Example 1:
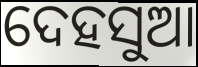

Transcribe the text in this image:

ଦେହସୁଆ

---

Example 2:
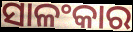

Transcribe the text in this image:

ସାଳଂକାର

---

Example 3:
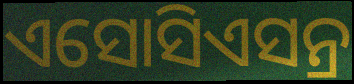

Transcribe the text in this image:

ଏସୋସିଏସନ୍ର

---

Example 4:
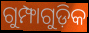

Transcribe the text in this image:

ଗୁମ୍ଫାଗୁଡ଼ିକ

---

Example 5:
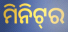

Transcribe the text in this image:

ମିନିଟ୍‌ର